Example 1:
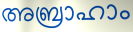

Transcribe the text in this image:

അബ്രാഹാം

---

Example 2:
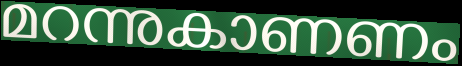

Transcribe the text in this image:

മറന്നുകാണണം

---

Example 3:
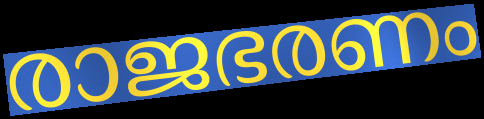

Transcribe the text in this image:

രാജഭരണം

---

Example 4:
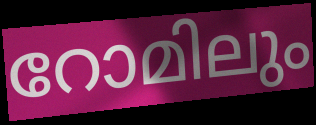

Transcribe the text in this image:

റോമിലും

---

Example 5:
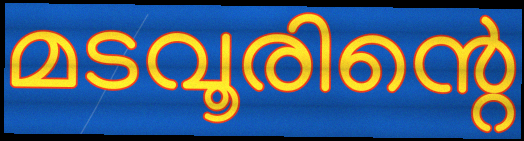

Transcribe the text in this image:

മടവൂരിന്റെ